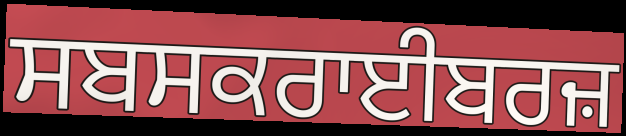
ਸਬਸਕਰਾਈਬਰਜ਼